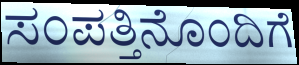
ಸಂಪತ್ತಿನೊಂದಿಗೆ